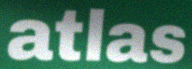
atlas